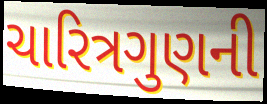
ચારિત્રગુણની